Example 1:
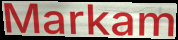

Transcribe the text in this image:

Markam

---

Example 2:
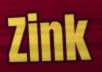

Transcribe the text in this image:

Zink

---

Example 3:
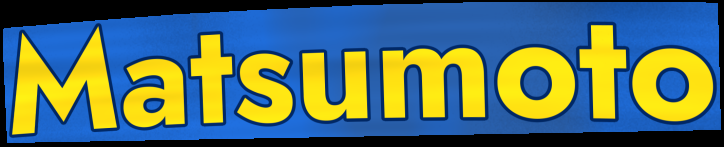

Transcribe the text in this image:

Matsumoto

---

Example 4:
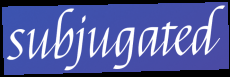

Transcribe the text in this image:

subjugated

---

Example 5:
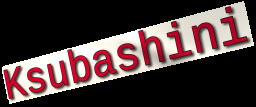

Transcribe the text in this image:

Ksubashini